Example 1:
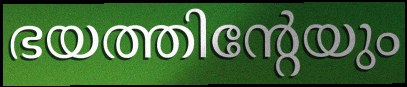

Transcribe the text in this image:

ഭയത്തിന്റേയും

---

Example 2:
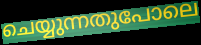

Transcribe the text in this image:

ചെയ്യുന്നതുപോലെ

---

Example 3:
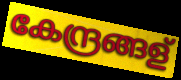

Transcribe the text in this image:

കേന്ദ്രങ്ങള്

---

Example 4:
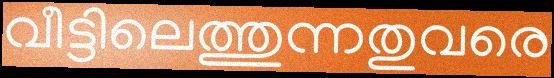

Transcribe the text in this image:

വീട്ടിലെത്തുന്നതുവരെ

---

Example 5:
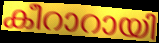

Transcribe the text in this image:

കീറാറായി